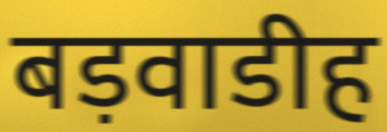
बड़वाडीह